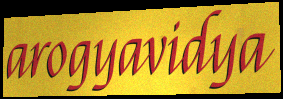
arogyavidya